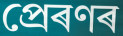
প্ৰেৰণৰ